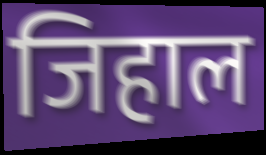
जिहाल